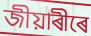
জীয়াৰীৰে